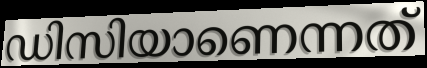
ഡിസിയാണെന്നത്